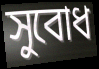
সুবোধ